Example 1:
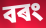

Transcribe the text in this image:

বৰং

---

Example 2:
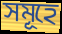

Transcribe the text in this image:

সমূহে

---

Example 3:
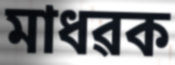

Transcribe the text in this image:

মাধৱক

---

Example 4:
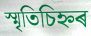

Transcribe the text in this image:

স্মৃতিচিহ্নৰ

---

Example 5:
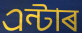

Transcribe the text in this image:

এন্টাৰ